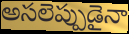
అసలెప్పుడైనా